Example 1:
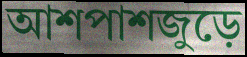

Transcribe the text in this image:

আশপাশজুড়ে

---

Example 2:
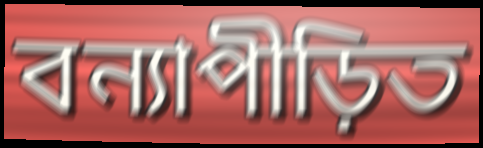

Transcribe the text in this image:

বন্যাপীড়িত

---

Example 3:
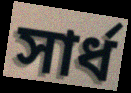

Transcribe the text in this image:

সার্ধ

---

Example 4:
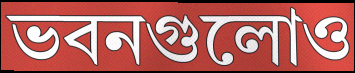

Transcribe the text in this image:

ভবনগুলোও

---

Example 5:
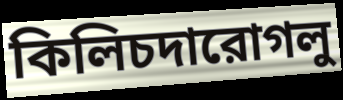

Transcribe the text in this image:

কিলিচদারোগলু